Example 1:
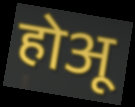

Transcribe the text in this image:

होअू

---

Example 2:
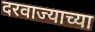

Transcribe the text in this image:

दरवाज्याच्या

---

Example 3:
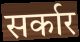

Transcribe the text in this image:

सर्कार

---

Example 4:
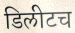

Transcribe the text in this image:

डिलीटच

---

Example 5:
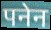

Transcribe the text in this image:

पनेन